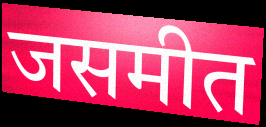
जसमीत